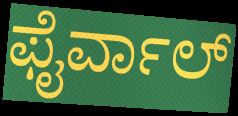
ಫೈರ್ವಾಲ್